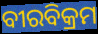
ବୀରବିକ୍ରମ